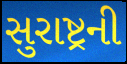
સુરાષ્ટ્રની